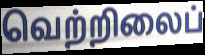
வெற்றிலைப்